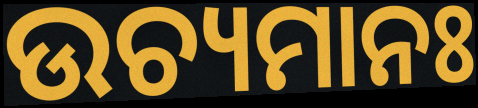
ଉଚ୍ୟମାନଃ